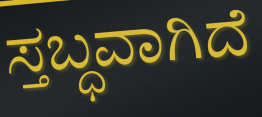
ಸ್ತಬ್ಧವಾಗಿದೆ